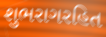
શુભરાગરહિત